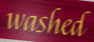
washed